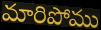
మారిపోము